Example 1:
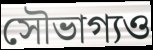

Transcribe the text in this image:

সৌভাগ্যও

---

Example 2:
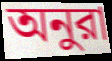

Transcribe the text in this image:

অনুরা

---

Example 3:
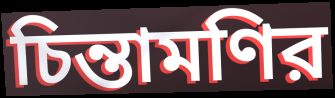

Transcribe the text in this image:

চিন্তামণির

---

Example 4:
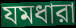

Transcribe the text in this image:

যমধারা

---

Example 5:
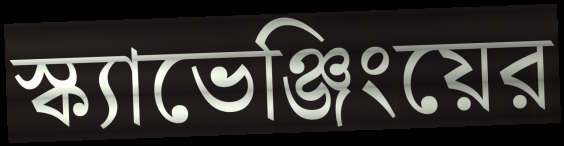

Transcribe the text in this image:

স্ক্যাভেঞ্জিংয়ের